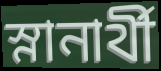
স্নানার্থী